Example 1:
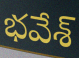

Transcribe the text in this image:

భవేశ్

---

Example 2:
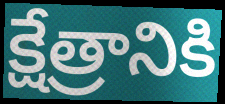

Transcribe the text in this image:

క్షేత్రానికి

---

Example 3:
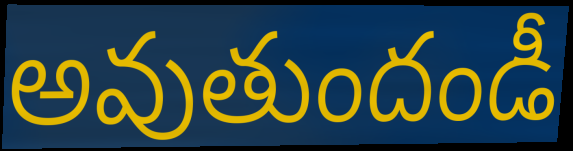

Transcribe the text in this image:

అవుతుందండీ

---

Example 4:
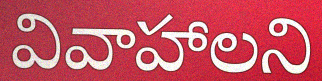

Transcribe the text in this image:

వివాహాలని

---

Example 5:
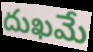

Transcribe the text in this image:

దుఖమే